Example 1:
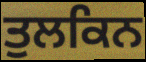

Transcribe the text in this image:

ਤੁਲਕਿਨ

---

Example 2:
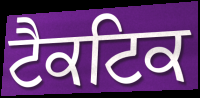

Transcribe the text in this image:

ਟੈਕਟਿਕ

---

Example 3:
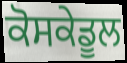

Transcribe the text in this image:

ਕੋਸਕੇਡੂਲ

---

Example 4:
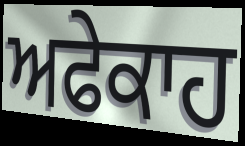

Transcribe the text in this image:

ਅਫੇਕਾਹ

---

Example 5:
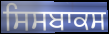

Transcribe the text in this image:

ਸਿਸਬਾਕਸ